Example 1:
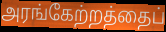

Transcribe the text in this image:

அரங்கேற்றத்தைப்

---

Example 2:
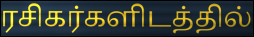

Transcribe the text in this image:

ரசிகர்களிடத்தில்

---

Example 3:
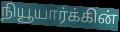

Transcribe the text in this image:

நியூயார்க்கின்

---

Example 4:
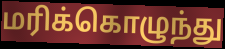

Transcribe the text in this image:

மரிக்கொழுந்து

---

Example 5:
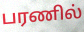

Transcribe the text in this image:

பரணில்